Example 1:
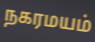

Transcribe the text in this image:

நகரமயம்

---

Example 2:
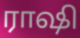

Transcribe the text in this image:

ராஷி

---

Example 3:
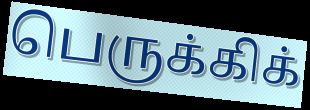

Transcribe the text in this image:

பெருக்கிக்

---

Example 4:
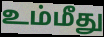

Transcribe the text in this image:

உம்மீது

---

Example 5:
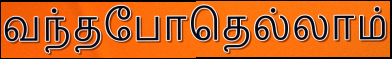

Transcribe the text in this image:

வந்தபோதெல்லாம்